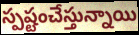
స్పష్టంచేస్తున్నాయి